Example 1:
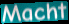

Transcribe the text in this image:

Macht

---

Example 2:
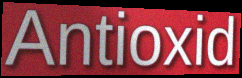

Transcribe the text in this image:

Antioxid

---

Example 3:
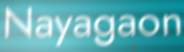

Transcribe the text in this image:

Nayagaon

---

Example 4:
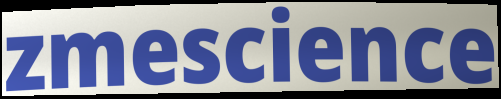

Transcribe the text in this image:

zmescience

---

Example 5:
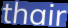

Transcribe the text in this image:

thair